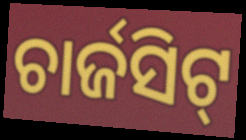
ଚାର୍ଜସିଟ୍